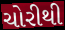
ચોરીથી